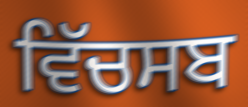
ਵਿੱਚਸਬ